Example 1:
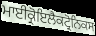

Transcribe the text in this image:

ਮਾਈਕ੍ਰੋਇਲੈਕਟ੍ਰੋਨਿਕਸ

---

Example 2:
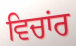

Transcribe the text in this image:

ਵਿਚਾਂਰ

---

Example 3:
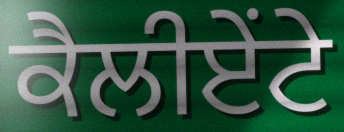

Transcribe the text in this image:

ਕੈਲੀਏਂਟੇ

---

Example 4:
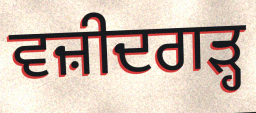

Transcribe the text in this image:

ਵਜ਼ੀਦਗੜ੍ਹ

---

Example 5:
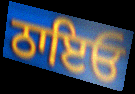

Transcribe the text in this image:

ਠਾਇਓ